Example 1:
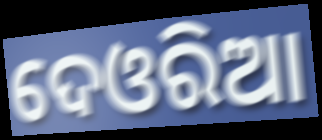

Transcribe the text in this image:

ଦେଓରିଆ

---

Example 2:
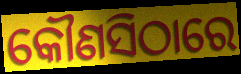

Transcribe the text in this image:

କୌଣସିଠାରେ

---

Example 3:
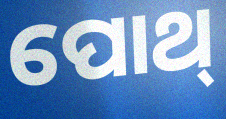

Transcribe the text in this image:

ପୋଥ୍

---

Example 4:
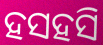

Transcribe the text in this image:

ହସହସି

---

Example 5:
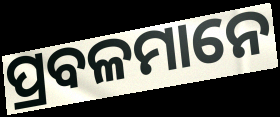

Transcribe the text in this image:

ପ୍ରବଳମାନେ